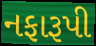
નફારૂપી